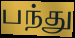
பந்து